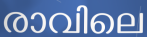
രാവിലെ